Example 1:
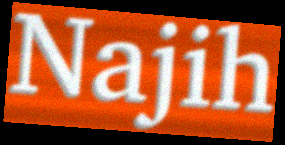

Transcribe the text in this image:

Najih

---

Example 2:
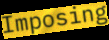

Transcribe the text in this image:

Imposing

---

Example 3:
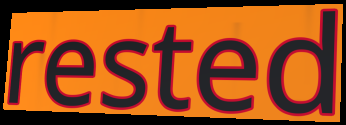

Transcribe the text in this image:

rested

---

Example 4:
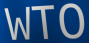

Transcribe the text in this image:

WTO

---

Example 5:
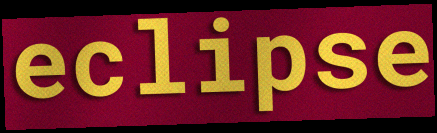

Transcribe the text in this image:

eclipse